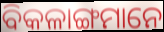
ବିକଳାଙ୍ଗମାନେ